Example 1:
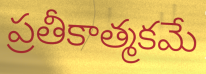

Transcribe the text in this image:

ప్రతీకాత్మకమే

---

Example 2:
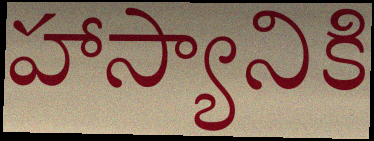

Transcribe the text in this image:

హాస్యానికి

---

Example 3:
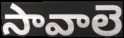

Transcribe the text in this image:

సావాలె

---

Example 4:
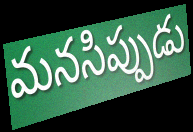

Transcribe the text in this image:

మనసిప్పుడు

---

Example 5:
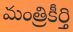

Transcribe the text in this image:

మంత్రికీర్తి